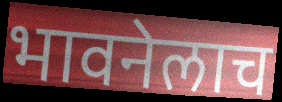
भावनेलाच